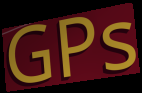
GPs